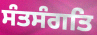
ਸੰਤਸੰਗਤਿ